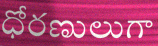
ధోరణులుగా